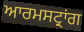
ਆਰਮਸਟ੍ਰਾਂਗ